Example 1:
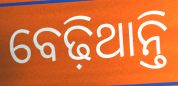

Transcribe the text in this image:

ବେଢ଼ିଥାନ୍ତି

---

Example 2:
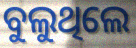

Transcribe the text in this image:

ବୁଲୁଥିଲେ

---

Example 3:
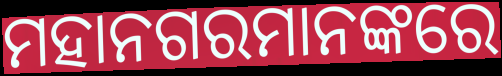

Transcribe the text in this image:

ମହାନଗରମାନଙ୍କରେ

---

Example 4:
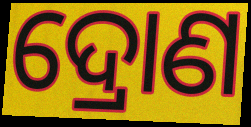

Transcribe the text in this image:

ଦ୍ରୋଣ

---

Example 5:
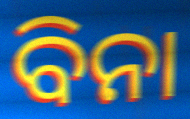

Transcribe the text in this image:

ବିନା